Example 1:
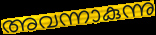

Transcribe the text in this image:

അവന്നാകുന്നു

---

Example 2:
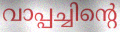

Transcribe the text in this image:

വാപ്പച്ചിന്റെ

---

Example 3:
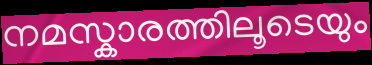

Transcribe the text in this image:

നമസ്കാരത്തിലൂടെയും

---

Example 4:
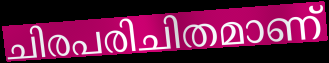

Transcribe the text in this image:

ചിരപരിചിതമാണ്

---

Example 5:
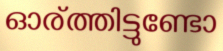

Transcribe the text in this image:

ഓര്ത്തിട്ടുണ്ടോ